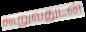
கூறுவதுடன்